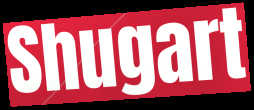
Shugart